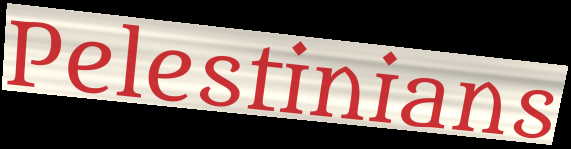
Pelestinians